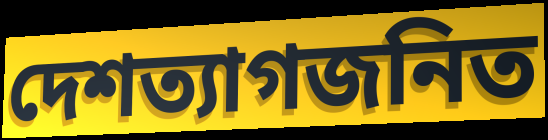
দেশত্যাগজনিত